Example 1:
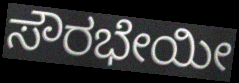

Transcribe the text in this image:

ಸೌರಭೇಯೀ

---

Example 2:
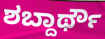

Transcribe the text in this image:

ಶಬ್ದಾರ್ಥೌ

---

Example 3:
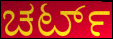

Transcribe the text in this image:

ಚರ್ಟ್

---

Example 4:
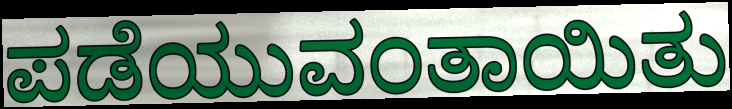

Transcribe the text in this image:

ಪಡೆಯುವಂತಾಯಿತು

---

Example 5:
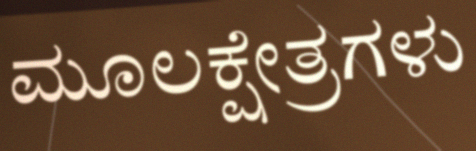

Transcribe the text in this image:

ಮೂಲಕ್ಷೇತ್ರಗಳು